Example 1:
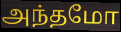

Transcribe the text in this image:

அந்தமோ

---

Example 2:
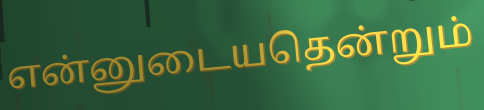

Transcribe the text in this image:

என்னுடையதென்றும்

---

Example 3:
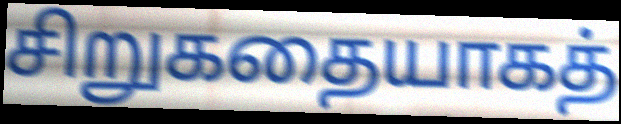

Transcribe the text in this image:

சிறுகதையாகத்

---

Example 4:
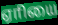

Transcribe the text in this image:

ஏரியை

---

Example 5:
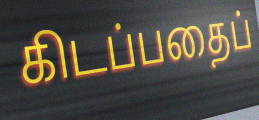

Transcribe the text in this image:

கிடப்பதைப்